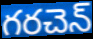
గరచెన్